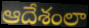
ఆదేశంలా